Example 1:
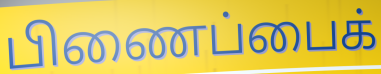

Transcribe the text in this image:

பிணைப்பைக்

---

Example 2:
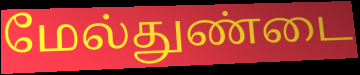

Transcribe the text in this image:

மேல்துண்டை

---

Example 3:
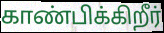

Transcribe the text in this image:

காண்பிக்கிறீர்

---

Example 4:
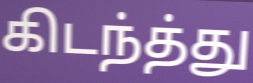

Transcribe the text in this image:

கிடந்த்து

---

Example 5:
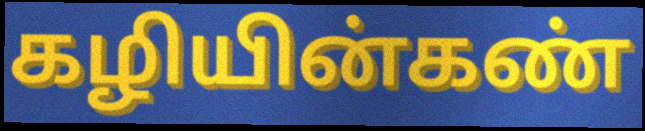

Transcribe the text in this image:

கழியின்கண்